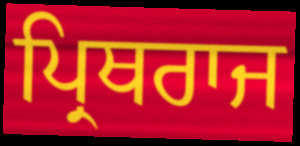
ਪ੍ਰਿਥਰਾਜ